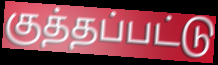
குத்தப்பட்டு